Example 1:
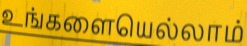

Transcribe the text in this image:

உங்களையெல்லாம்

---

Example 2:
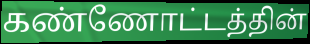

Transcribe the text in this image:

கண்ணோட்டத்தின்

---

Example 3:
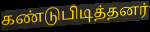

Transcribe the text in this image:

கண்டுபிடித்தனர்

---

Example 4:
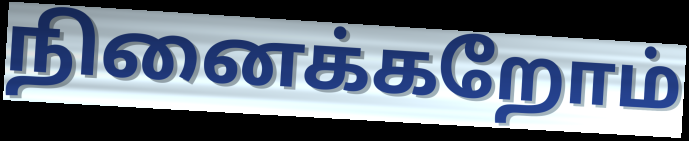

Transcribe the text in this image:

நினைக்கறோம்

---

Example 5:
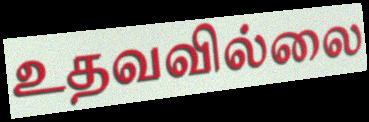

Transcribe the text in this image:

உதவவில்லை